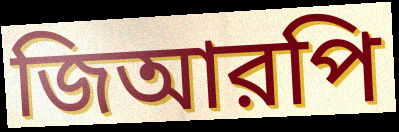
জিআরপি